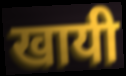
खायी